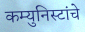
कम्युनिस्टांचे